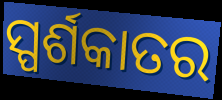
ସ୍ପର୍ଶକାତର